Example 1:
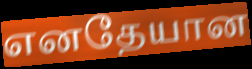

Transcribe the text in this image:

எனதேயான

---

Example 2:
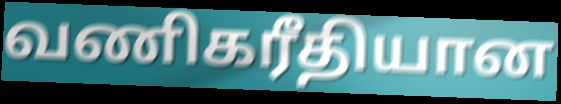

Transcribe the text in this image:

வணிகரீதியான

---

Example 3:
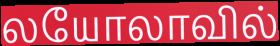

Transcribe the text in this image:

லயோலாவில்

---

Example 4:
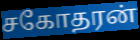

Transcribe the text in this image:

சகோதரன்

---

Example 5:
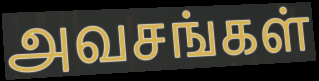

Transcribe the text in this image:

அவசங்கள்